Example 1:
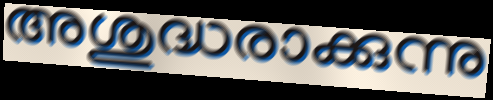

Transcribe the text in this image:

അശുദ്ധരാക്കുന്നു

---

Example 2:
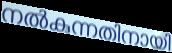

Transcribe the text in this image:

നൽകുന്നതിനായി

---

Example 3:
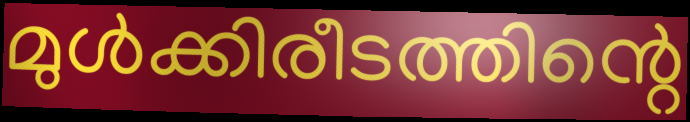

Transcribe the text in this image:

മുൾക്കിരീടത്തിന്റെ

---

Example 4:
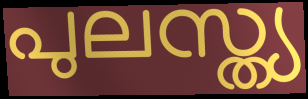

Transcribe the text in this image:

പുലസ്ത്യ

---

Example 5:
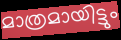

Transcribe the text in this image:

മാത്രമായിട്ടും